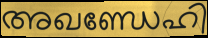
അഖണ്ഡേഹി